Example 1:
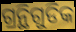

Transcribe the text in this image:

ଗ୍ରନ୍ଥିଗୁଡିକ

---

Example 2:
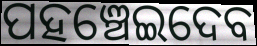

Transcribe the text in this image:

ପହଞ୍ଚେଇଦେବ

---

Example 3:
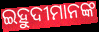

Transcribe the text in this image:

ଇହୁଦୀମାନଙ୍କ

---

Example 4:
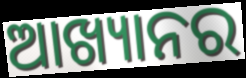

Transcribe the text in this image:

ଆଖ୍ୟାନର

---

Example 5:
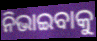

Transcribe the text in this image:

ନିଭାଇବାକୁ